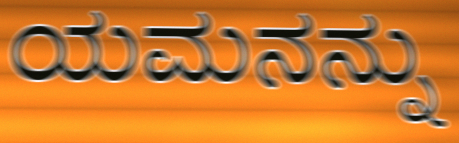
ಯಮನನ್ನು